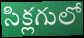
సిక్లగులో